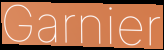
Garnier